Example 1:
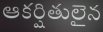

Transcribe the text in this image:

ఆకర్షితులైన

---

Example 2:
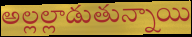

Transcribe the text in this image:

అల్లల్లాడుతున్నాయి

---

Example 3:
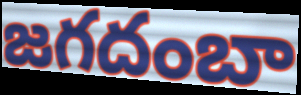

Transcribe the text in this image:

జగదంబా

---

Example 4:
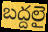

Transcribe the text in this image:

బద్దలై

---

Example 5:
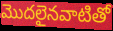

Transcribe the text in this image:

మొదలైనవాటితో